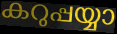
കറുപ്പയ്യാ